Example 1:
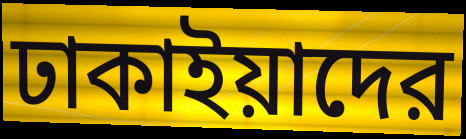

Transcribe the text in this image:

ঢাকাইয়াদের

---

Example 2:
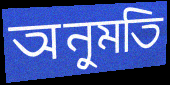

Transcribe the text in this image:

অনুমতি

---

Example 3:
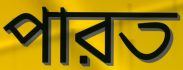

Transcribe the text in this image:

পারত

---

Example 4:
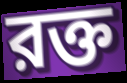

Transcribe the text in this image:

রক্ত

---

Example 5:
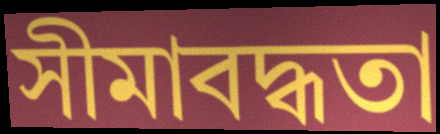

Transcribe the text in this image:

সীমাবদ্ধতা